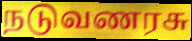
நடுவணரசு